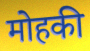
मोहकी